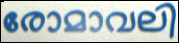
രോമാവലി